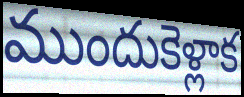
ముందుకెళ్లాక